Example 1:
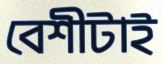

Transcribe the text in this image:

বেশীটাই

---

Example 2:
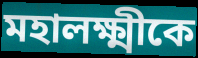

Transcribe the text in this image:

মহালক্ষ্মীকে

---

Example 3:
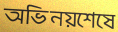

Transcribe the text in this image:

অভিনয়শেষে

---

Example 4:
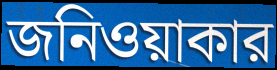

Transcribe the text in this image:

জনিওয়াকার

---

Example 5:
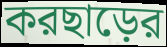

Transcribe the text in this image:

করছাড়ের